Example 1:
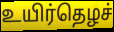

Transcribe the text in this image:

உயிர்தெழச்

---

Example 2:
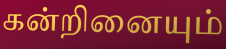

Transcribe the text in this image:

கன்றினையும்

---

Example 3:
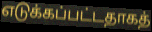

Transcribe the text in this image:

எடுக்கப்பட்டதாகத்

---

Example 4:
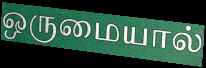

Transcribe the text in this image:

ஒருமையால்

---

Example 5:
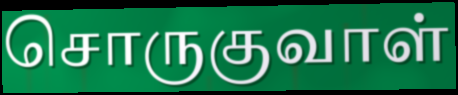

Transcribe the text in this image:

சொருகுவாள்